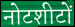
नोटशीटों